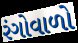
રંગોવાળો